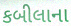
કબીલાના